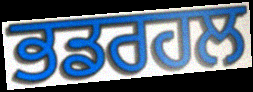
ਭਡਰਹਲ